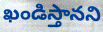
ఖండిస్తానని